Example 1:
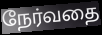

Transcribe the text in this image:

நேர்வதை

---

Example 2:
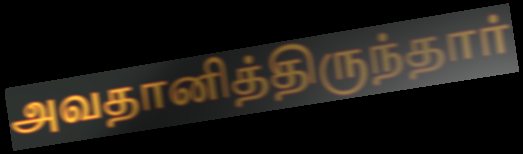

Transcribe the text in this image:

அவதானித்திருந்தார்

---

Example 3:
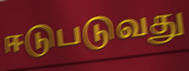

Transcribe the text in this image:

ஈடுபடுவது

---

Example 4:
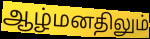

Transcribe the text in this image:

ஆழ்மனதிலும்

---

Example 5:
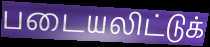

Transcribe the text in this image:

படையலிட்டுக்